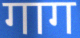
गाग